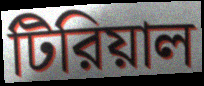
টিরিয়াল